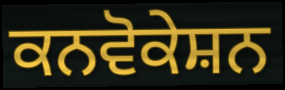
ਕਨਵੋਕੇਸ਼ਨ